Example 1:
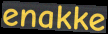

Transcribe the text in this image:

enakke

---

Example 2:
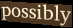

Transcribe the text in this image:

possibly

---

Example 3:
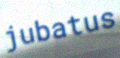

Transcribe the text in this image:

jubatus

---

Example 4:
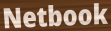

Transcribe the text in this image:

Netbook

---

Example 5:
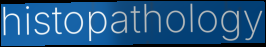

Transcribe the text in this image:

histopathology